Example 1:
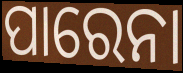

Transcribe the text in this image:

ପାରେନା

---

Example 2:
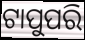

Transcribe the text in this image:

ଟାପୁପରି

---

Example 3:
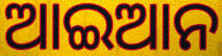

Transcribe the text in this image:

ଆଇଆନ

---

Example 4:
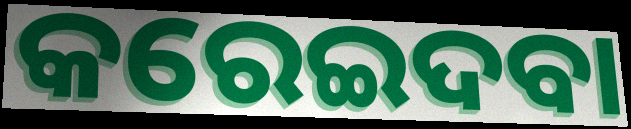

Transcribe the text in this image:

କରେଇଦବା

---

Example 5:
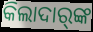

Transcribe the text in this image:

କିଲାଦାର୍‍ଙ୍କ